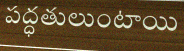
పద్ధతులుంటాయి